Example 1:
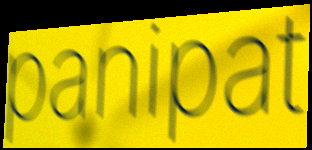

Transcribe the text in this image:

panipat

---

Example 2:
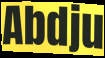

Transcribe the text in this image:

Abdju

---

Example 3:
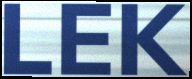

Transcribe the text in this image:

LEK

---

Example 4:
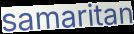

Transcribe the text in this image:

samaritan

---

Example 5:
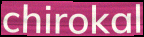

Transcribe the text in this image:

chirokal